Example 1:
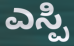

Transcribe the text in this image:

ಎಸ್ಪಿ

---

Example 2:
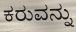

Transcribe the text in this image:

ಕರುವನ್ನು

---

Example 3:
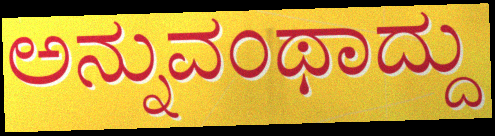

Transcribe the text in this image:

ಅನ್ನುವಂಥಾದ್ದು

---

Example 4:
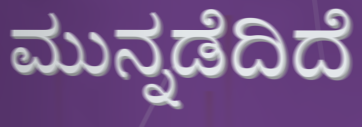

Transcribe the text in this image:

ಮುನ್ನಡೆದಿದೆ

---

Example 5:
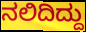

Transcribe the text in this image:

ನಲಿದಿದ್ದು